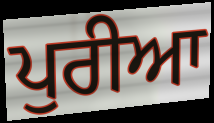
ਪੁਰੀਆ